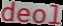
deol